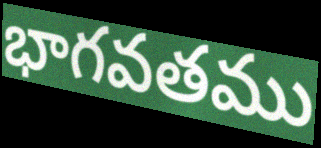
భాగవతము